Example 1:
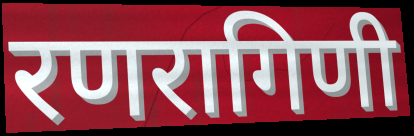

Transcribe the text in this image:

रणरागिणी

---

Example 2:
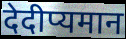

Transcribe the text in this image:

देदीप्यमान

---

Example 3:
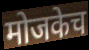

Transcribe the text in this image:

मोजकेच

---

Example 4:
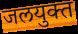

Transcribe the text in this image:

जलयुक्त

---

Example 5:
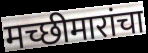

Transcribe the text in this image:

मच्छीमारांचा